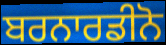
ਬਰਨਾਰਡੀਨੋ